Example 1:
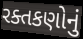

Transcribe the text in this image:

રક્તકણોનું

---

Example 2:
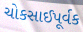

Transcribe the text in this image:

ચોકસાઈપૂર્વક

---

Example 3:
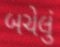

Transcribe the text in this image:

બચેલું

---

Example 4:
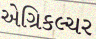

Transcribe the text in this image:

એગ્રિકલ્ચર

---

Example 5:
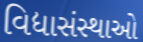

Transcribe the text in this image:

વિદ્યાસંસ્થાઓ